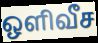
ஒளிவீச